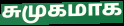
சுமுகமாக